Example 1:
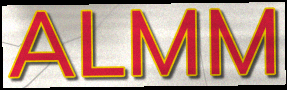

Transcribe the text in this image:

ALMM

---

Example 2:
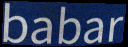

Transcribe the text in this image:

babar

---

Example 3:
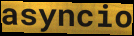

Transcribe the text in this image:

asyncio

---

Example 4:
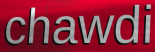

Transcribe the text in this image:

chawdi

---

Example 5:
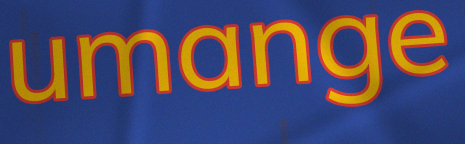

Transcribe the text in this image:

umange